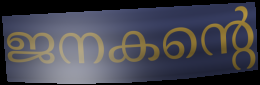
ജനകന്റെ